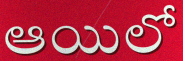
ఆయిలో